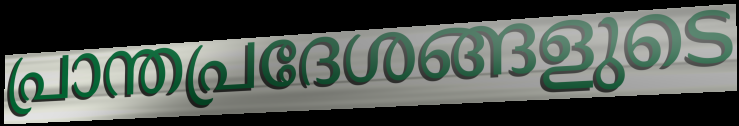
പ്രാന്തപ്രദേശങ്ങളുടെ